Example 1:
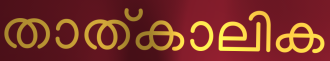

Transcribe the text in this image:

താത്കാലിക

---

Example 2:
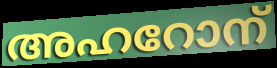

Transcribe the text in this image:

അഹറോന്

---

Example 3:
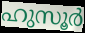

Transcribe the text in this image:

ഹുസൂർ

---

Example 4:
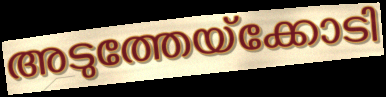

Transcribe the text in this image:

അടുത്തേയ്‌ക്കോടി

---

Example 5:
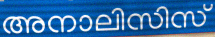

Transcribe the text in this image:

അനാലിസിസ്